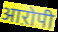
आऱोपी